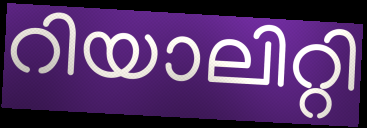
റിയാലിറ്റി